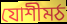
যোশীমঠ